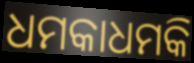
ଧମକାଧମକି